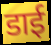
डाई